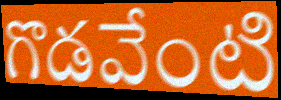
గొడవేంటి